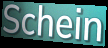
Schein